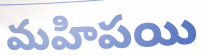
మహిపయి